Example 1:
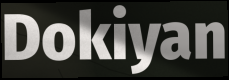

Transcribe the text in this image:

Dokiyan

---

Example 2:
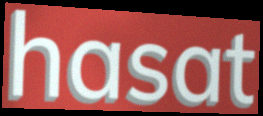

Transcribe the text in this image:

hasat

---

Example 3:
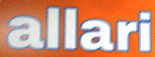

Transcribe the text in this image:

allari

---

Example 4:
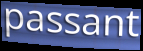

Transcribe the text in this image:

passant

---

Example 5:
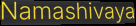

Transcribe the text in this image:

Namashivaya